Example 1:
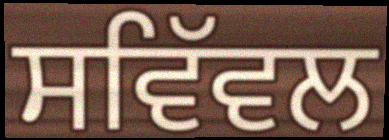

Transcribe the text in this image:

ਸਵਿੱਵਲ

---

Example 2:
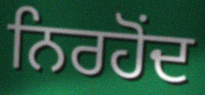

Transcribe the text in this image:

ਨਿਰਹੋਂਦ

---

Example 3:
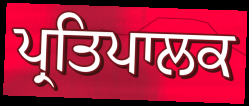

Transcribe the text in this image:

ਪ੍ਰਤਿਪਾਲਕ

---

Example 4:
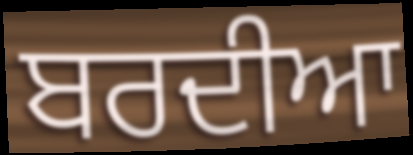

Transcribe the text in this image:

ਬਰਦੀਆ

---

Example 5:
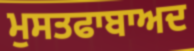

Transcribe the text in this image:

ਮੁਸਤਫਾਬਾਅਦ